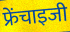
फ्रेंचाइजी